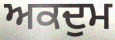
ਅਕਦੁਮ